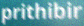
prithibir